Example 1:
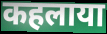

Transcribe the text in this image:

कहलाया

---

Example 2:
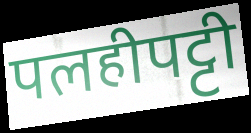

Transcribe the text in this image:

पलहीपट्टी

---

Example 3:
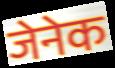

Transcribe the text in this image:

जेनेक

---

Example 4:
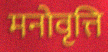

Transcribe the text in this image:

मनोवृत्ति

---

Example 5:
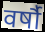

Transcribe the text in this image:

वर्षौ